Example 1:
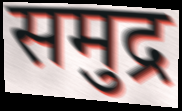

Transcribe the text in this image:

समुद्र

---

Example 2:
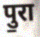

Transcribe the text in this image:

पु॒रा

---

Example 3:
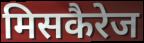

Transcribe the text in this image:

मिसकैरेज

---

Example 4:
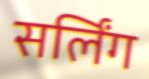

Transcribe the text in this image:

सर्लिंग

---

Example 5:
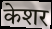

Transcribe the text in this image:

केशर